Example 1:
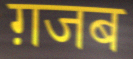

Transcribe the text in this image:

ग़जब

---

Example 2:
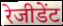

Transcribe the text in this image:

रेजीडेंट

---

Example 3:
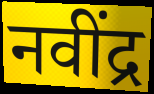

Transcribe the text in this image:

नवींद्र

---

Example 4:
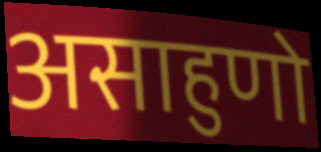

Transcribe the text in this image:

असाहुणो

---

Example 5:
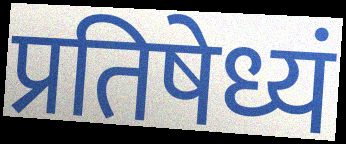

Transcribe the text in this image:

प्रतिषेध्यं